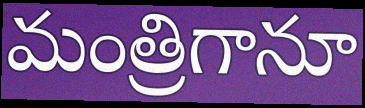
మంత్రిగానూ